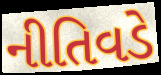
નીતિવડે